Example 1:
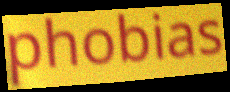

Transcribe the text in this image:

phobias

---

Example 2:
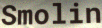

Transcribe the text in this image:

Smolin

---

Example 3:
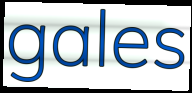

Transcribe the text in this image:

gales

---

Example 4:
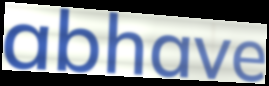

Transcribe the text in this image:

abhave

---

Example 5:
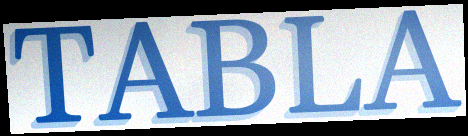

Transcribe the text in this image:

TABLA